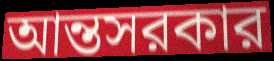
আন্তসরকার